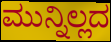
ಮುನ್ನಿಲ್ಲದ